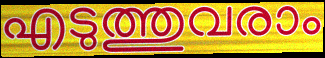
എടുത്തുവരാം